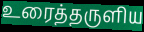
உரைத்தருளிய